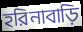
হরিনাবাড়ি